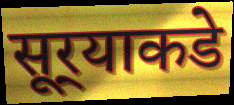
सूर्याकडे